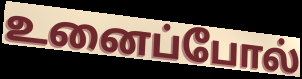
உனைப்போல்